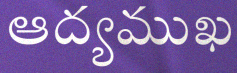
ఆద్యముఖ